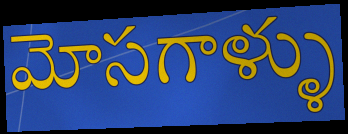
మోసగాళ్ళు